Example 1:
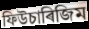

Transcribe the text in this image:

ফিউচাৰিজিম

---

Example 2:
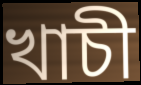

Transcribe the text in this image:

খাচী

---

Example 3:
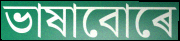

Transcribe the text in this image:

ভাষাবোৰে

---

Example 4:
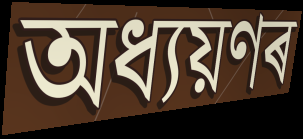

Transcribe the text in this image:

অধ্যয়ণৰ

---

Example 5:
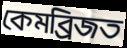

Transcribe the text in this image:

কেমব্ৰিজত